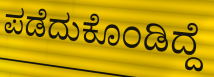
ಪಡೆದುಕೊಂಡಿದ್ದೆ